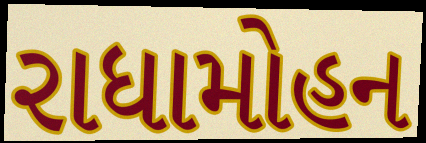
રાધામોહન